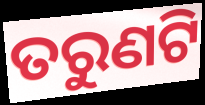
ତରୁଣଟି